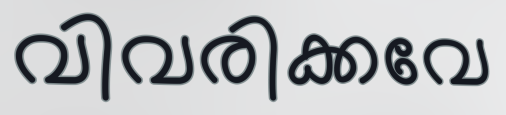
വിവരിക്കവേ